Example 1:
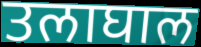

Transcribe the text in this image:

उलाघाल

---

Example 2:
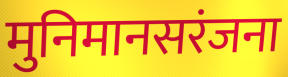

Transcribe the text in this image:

मुनिमानसरंजना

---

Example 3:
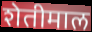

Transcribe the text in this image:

शेतीमाल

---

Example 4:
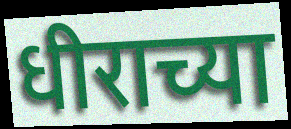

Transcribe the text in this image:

धीराच्या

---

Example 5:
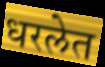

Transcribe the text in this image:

धरलेत